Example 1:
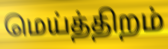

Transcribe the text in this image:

மெய்த்திறம்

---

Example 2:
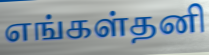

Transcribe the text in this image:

எங்கள்தனி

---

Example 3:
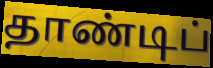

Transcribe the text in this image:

தாண்டிப்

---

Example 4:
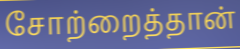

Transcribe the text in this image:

சோற்றைத்தான்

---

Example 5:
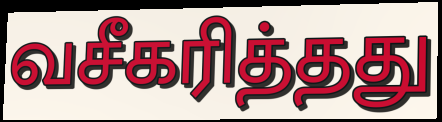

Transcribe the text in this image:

வசீகரித்தது